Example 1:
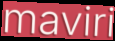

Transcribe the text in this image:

maviri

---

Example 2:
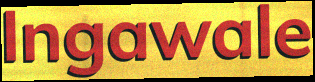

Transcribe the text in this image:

Ingawale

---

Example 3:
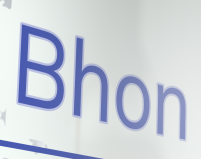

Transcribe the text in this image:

Bhon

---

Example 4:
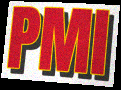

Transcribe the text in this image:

PMI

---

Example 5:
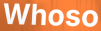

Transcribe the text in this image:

Whoso